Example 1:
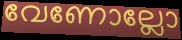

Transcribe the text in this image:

വേണോല്ലോ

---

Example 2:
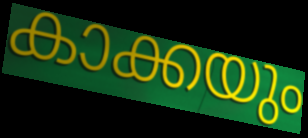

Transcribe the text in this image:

കാക്കയും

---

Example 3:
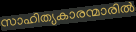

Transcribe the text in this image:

സാഹിത്യകാരന്മാരിൽ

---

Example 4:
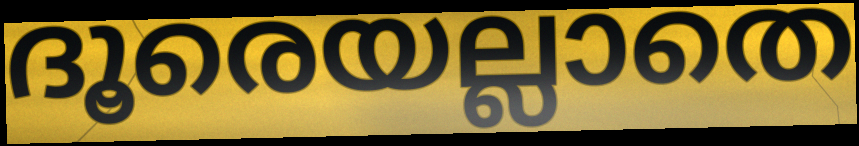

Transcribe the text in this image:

ദൂരെയല്ലാതെ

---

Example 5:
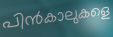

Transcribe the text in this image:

പിൻകാലുകളെ